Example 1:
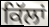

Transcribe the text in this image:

ਕਿੱਲਾਂ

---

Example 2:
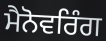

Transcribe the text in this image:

ਮੈਨੋਵਰਿੰਗ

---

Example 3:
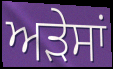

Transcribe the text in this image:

ਅੜੇਸਾਂ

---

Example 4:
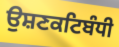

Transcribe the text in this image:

ਉਸ਼ਣਕਟਿਬੰਧੀ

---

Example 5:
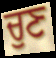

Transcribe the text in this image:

ਚੁਣ